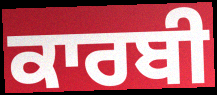
ਕਾਰਬੀ